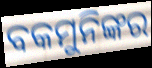
ବକମୁନିଙ୍କର